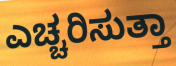
ಎಚ್ಚರಿಸುತ್ತಾ